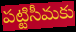
పట్టిసీమకు